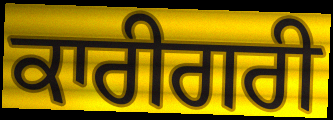
ਕਾਰੀਗਰੀ